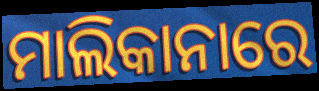
ମାଲିକାନାରେ